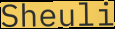
Sheuli